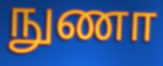
நுணா